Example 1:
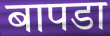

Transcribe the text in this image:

बापडा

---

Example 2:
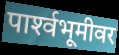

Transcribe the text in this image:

पार्श्‍वभूमीवर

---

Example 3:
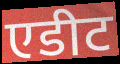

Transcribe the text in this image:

एडीट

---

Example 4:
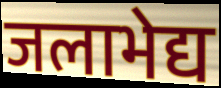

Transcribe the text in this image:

जलाभेद्य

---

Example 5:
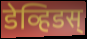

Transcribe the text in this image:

डेव्हिडस्